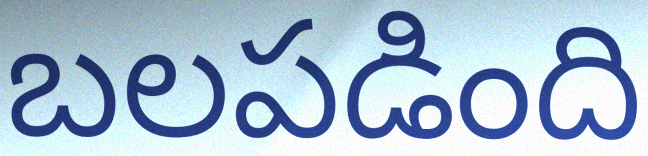
బలపడింది